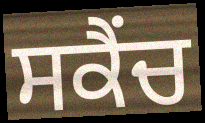
ਸਕੈਂਚ